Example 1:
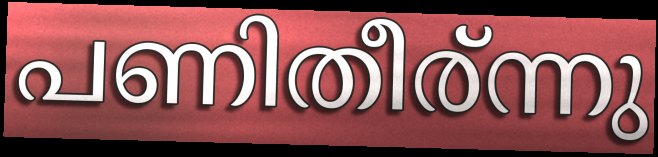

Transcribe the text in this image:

പണിതീര്ന്നു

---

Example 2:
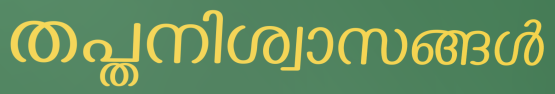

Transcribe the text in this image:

തപ്തനിശ്വാസങ്ങൾ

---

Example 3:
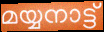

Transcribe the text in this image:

മയ്യനാട്ട്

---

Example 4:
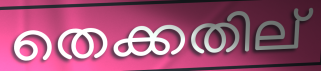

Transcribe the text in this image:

തെക്കതില്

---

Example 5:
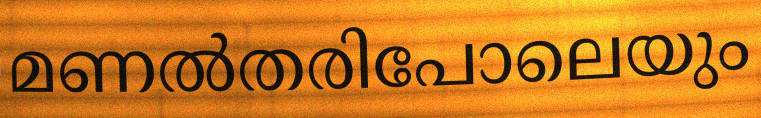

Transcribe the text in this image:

മണൽതരിപോലെയും